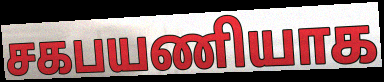
சகபயணியாக